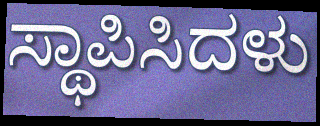
ಸ್ಥಾಪಿಸಿದಳು